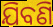
ଯିବଣି